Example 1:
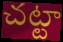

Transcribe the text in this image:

చట్టా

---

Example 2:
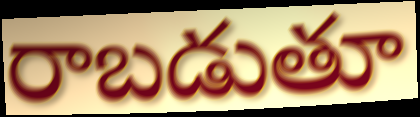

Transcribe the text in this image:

రాబడుతూ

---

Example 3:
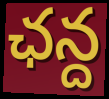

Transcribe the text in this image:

ఛన్ద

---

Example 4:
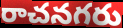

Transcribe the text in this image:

రాచనగరు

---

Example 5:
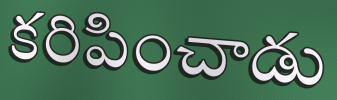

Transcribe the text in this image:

కరిపించాడు